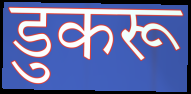
डुकरू